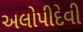
અલોપીદેવી